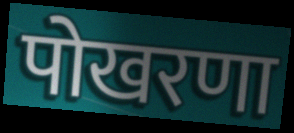
पोखरणा